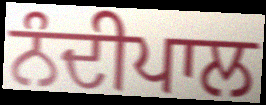
ਨੰਦੀਪਾਲ